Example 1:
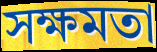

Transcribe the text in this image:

সক্ষমতা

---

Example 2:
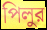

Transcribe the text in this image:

পিলুর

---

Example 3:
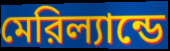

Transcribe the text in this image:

মেরিল্যান্ডে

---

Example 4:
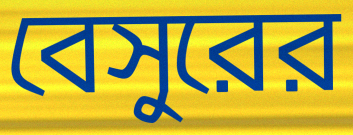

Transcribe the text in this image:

বেসুরের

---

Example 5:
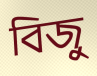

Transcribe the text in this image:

বিজু